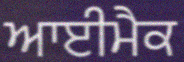
ਆਈਮੈਕ